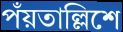
পঁয়তাল্লিশে